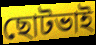
ছোটভাই